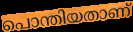
പൊന്തിയതാണ്